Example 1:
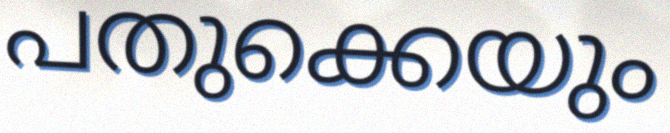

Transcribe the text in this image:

പതുക്കെയും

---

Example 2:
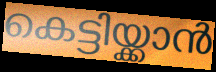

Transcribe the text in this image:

കെട്ടിയ്ക്കാൻ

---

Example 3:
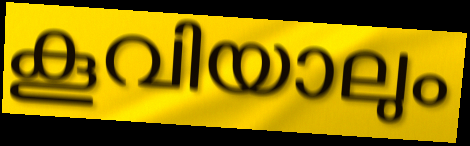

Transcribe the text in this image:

കൂവിയാലും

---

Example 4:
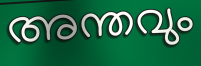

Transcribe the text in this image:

അന്തവും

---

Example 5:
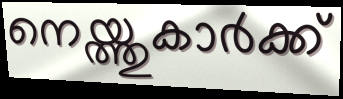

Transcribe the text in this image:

നെയ്ത്തുകാർക്ക്